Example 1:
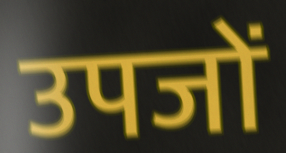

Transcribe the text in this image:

उपजों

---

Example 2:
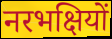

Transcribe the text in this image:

नरभक्षियों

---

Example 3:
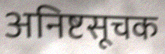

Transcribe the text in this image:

अनिष्टसूचक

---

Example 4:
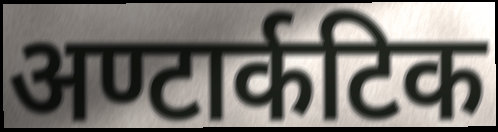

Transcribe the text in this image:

अण्टार्कटिक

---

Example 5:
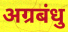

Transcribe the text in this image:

अग्रबंधु